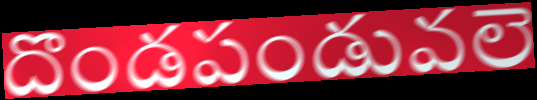
దొండపండువలె